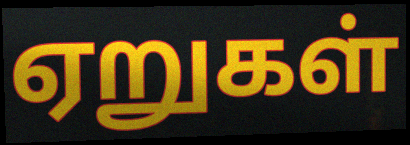
ஏறுகள்